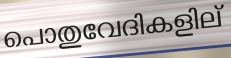
പൊതുവേദികളില്